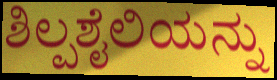
ಶಿಲ್ಪಶೈಲಿಯನ್ನು